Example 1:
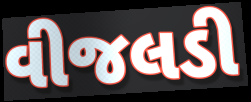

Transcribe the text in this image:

વીજલડી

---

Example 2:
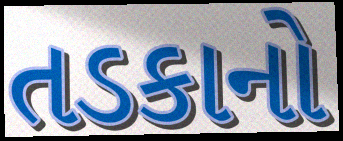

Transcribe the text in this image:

તડકાનો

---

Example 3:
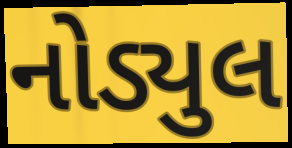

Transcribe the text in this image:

નોડ્યુલ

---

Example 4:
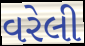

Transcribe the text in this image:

વરેલી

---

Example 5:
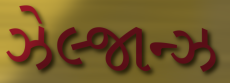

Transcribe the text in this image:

ઝેલ્જાન્ઝ